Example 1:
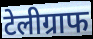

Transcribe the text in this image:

टेलीग्राफ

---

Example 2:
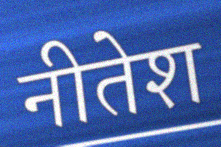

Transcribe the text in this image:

नीतेश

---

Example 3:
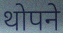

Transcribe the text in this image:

थोपने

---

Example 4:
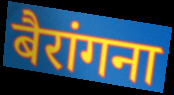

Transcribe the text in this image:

बैरांगना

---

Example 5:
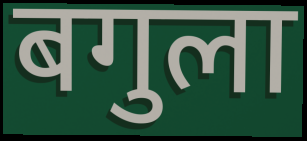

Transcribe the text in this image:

बगुला